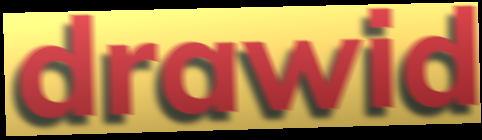
drawid